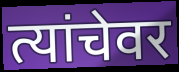
त्यांचेवर